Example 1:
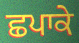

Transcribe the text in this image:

ਛਪਾਕੇ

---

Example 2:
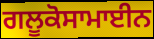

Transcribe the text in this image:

ਗਲੂਕੋਸਾਮਾਈਨ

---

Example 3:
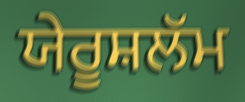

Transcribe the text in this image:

ਯੇਰੂਸ਼ਲੱਮ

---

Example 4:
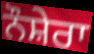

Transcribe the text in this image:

ਨੌਸ਼ੇਰਾ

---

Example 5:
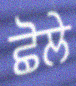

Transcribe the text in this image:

ਛੋਲੇ